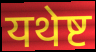
यथेष्ट